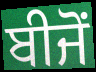
ਬੀਜੋਂ